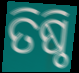
ତିଷ୍ଠି